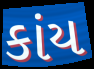
કાંય